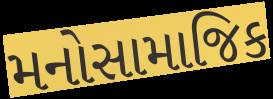
મનોસામાજિક